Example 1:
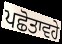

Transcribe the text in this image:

ਪਛੋਤਾਵਹੇ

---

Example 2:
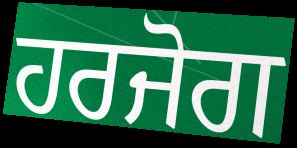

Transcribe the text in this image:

ਹਰਜੋਗ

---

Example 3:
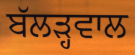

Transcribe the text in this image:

ਬੱਲੜ੍ਹਵਾਲ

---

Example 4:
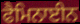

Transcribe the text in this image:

ਫੈਮਿਨਾਈਨ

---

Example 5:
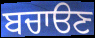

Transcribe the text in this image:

ਬਚਾੳਣ